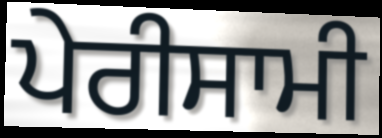
ਪੇਰੀਸਾਮੀ